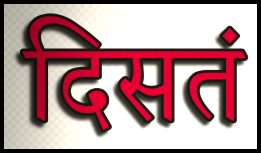
दिसतं